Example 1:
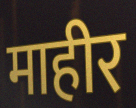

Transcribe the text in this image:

माहीर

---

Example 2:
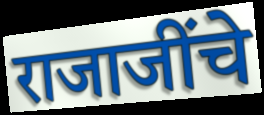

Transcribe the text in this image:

राजाजींचे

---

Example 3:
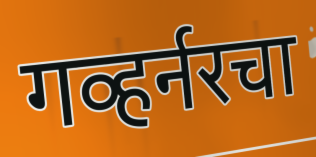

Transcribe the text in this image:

गव्हर्नरचा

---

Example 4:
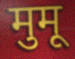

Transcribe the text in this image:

मुमू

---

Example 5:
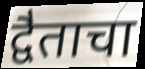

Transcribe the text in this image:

द्वैताचा